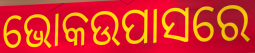
ଭୋକଉପାସରେ